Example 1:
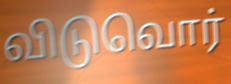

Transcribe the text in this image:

விடுவொர்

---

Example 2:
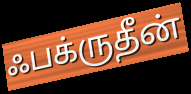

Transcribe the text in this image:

ஃபக்ருதீன்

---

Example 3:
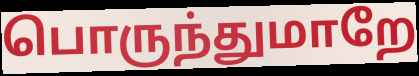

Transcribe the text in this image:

பொருந்துமாறே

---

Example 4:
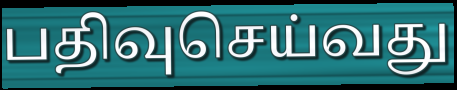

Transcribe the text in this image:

பதிவுசெய்வது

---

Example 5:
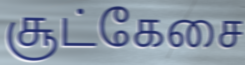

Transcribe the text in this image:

சூட்கேசை